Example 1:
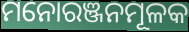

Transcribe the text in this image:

ମନୋରଞ୍ଜନମୂଳକ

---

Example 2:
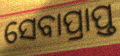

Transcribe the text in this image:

ସେବାପ୍ରାପ୍ତ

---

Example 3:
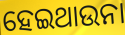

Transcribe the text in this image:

ହେଇଥାଉନା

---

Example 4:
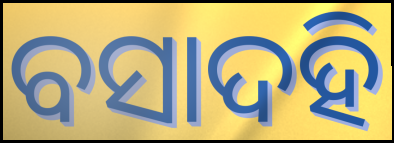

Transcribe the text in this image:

ବସାଦହି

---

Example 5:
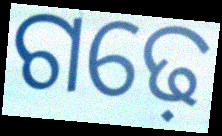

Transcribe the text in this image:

ଗଢ଼େ